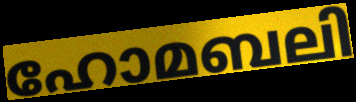
ഹോമബലി